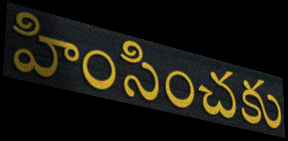
హింసించకు